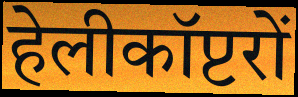
हेलीकॉप्टरों